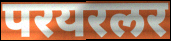
परयरलर